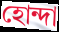
হোন্দা